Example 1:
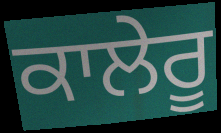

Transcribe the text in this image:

ਕਾਲੇਰੂ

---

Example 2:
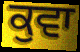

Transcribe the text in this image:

ਕੁਵਾ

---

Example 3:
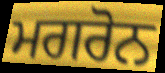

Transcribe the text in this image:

ਮਗਰੋਨ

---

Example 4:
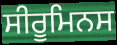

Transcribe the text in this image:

ਸੀਰੂਮਿਨਸ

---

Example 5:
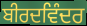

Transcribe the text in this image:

ਬੀਰਦਵਿੰਦਰ